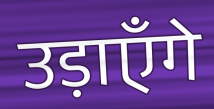
उड़ाएँगे